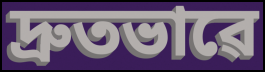
দ্ৰুতভাৱে